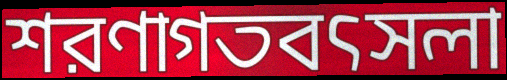
শরণাগতবৎসলা